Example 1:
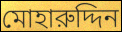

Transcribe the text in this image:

মোহারুদ্দিন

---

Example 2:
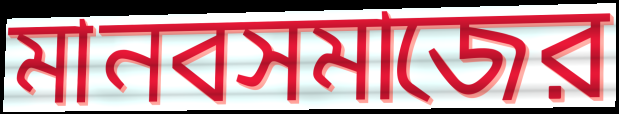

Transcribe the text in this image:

মানবসমাজের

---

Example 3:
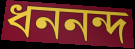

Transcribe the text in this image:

ধননন্দ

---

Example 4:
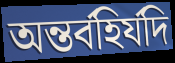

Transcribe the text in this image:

অন্তর্বহির্যদি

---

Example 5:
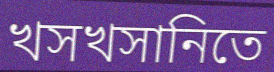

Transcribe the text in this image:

খসখসানিতে